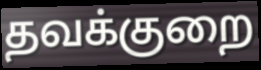
தவக்குறை